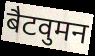
बैटवुमन